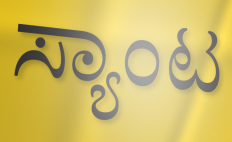
ಸ್ಯಾಂಟ